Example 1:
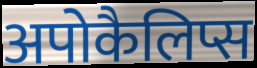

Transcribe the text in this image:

अपोकैलिप्स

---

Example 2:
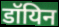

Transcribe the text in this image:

डॉयिन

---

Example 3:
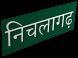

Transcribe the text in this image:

निचलागढ़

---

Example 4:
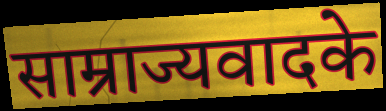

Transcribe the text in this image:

साम्राज्यवादके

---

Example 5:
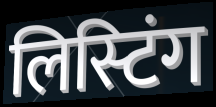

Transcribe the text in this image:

लिस्‍टिंग